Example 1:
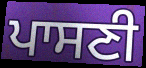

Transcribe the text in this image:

ਪਾਸਣੀ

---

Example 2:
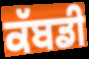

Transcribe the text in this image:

ਕੱਬਡੀ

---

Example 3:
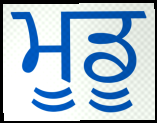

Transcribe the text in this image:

ਮੂਡੂ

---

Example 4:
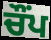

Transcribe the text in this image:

ਚੌਂਪ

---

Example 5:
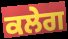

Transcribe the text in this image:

ਕਲੇਗ